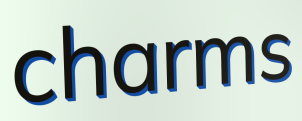
charms